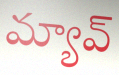
మ్యావ్